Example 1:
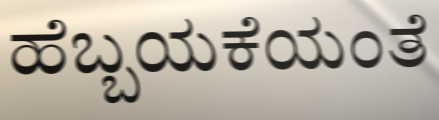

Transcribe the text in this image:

ಹೆಬ್ಬಯಕೆಯಂತೆ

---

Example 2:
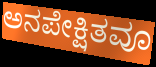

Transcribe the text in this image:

ಅನಪೇಕ್ಷಿತವೂ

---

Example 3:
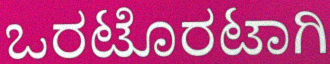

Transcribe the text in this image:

ಒರಟೊರಟಾಗಿ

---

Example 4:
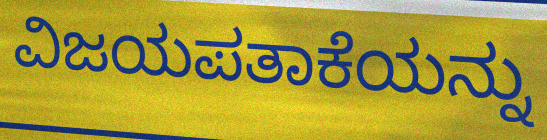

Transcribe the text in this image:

ವಿಜಯಪತಾಕೆಯನ್ನು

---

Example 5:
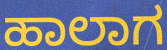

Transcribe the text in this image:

ಹಾಲಾಗ